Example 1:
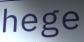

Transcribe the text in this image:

hege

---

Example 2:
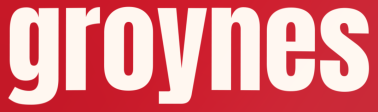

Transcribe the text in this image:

groynes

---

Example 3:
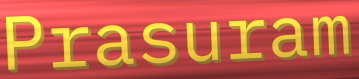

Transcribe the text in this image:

Prasuram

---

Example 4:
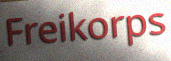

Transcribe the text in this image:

Freikorps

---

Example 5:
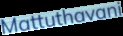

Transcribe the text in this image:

Mattuthavani